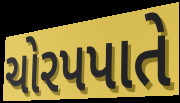
ચોરપપાતે